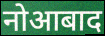
नोआबाद